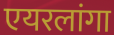
एयरलांगा